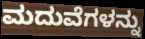
ಮದುವೆಗಳನ್ನು